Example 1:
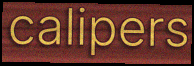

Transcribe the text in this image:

calipers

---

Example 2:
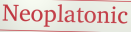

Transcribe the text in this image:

Neoplatonic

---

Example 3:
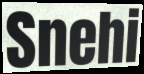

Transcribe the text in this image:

Snehi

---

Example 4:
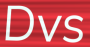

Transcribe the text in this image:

Dvs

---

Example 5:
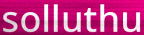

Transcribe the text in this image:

solluthu